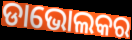
ଡାଭୋଲକର